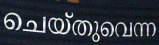
ചെയ്തുവെന്ന